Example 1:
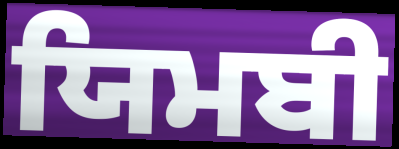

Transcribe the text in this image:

ਯਿਮਬੀ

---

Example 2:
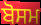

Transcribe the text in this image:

ਬੋਸਮ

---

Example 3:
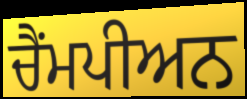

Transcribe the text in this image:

ਚੈਂਮਪੀਅਨ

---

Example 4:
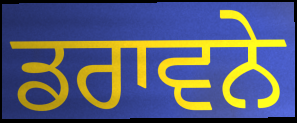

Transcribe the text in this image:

ਡਰਾਵਨੇ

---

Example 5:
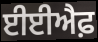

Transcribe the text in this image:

ਈਈਐਫ਼